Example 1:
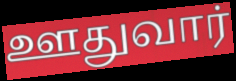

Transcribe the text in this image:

ஊதுவார்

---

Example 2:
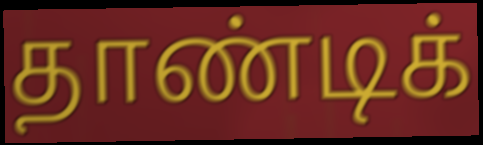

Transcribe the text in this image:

தாண்டிக்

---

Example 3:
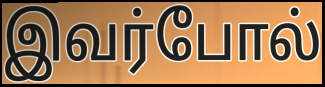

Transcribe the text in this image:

இவர்போல்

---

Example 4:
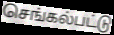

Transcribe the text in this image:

செங்கல்பட்டு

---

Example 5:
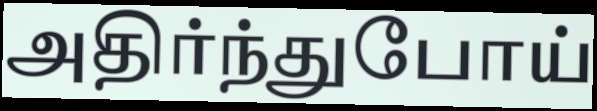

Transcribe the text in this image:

அதிர்ந்துபோய்